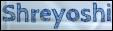
Shreyoshi